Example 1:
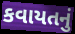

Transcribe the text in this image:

કવાયતનું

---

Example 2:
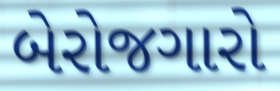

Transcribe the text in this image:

બેરોજગારો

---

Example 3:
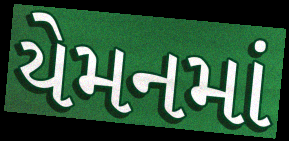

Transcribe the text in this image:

યેમનમાં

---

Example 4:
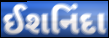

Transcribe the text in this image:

ઈશનિંદા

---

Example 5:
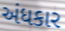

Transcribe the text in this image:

અંધકાર